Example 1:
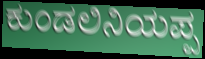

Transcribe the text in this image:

ಕುಂಡಲಿನಿಯಪ್ಪ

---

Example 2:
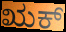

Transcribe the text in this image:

ಋಕ್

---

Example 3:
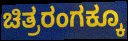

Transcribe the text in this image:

ಚಿತ್ರರಂಗಕ್ಕೂ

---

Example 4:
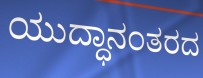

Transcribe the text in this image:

ಯುದ್ಧಾನಂತರದ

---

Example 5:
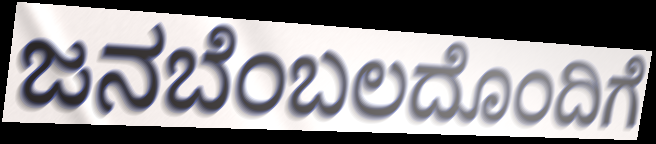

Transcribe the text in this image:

ಜನಬೆಂಬಲದೊಂದಿಗೆ